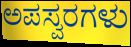
ಅಪಸ್ವರಗಳು